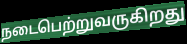
நடைபெற்றுவருகிறது